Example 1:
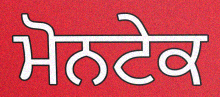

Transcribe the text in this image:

ਮੋਨਟੇਕ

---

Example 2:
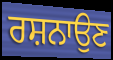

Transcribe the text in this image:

ਰਸ਼ਨਾਉਣ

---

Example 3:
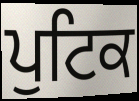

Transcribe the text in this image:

ਪੁਟਿਕ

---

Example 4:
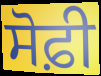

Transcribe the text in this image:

ਸੋਫ਼ੀ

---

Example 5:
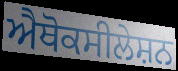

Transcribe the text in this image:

ਐਥੋਕਸੀਲੇਸ਼ਨ